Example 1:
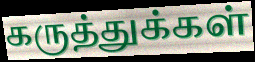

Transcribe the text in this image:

கருத்துக்கள்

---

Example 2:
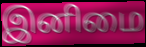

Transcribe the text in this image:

இனிமை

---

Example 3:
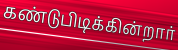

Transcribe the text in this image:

கண்டுபிடிக்கின்றார்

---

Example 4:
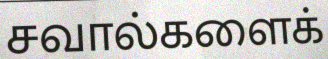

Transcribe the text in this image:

சவால்களைக்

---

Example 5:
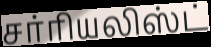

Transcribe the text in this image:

சர்ரியலிஸ்ட்